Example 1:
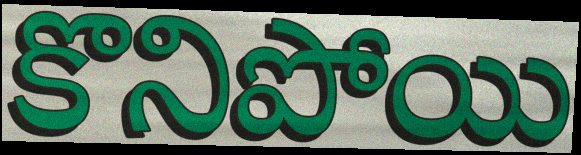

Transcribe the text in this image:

కొనిపోయి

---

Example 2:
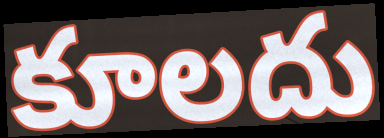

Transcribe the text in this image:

కూలదు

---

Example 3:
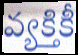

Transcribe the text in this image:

వ్యక్తికీ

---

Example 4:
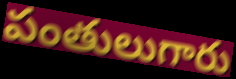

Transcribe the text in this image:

పంతులుగారు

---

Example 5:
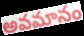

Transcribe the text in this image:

అవమానం